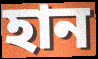
হান